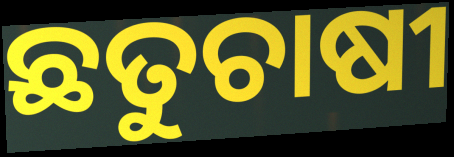
ଛତୁଚାଷୀ